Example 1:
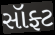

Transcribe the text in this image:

સૉફ્ટ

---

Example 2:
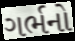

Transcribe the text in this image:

ગર્ભનો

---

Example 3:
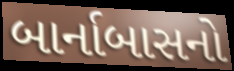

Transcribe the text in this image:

બાર્નાબાસનો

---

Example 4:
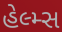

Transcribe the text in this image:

હેલ્મ્સ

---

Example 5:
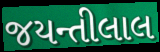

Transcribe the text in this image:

જયન્તીલાલ